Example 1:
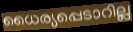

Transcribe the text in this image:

ധൈര്യപ്പെടാറില്ല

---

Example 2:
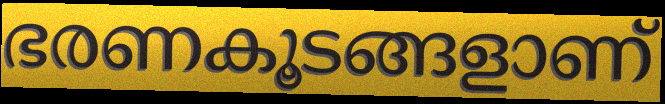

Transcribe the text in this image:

ഭരണകൂടങ്ങളാണ്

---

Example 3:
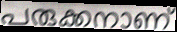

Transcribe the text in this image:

പരുക്കനാണ്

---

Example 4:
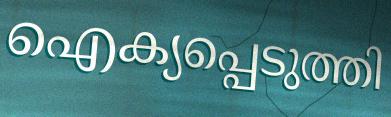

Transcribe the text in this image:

ഐക്യപ്പെടുത്തി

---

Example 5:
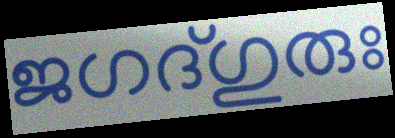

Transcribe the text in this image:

ജഗദ്ഗുരുഃ